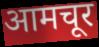
आमचूर